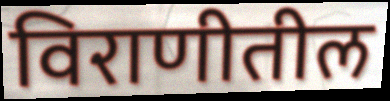
विराणीतील